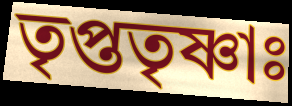
তৃপ্ততৃষ্ণাঃ